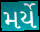
મર્યે